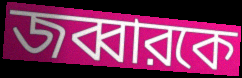
জব্বারকে